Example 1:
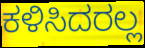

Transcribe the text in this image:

ಕಳಿಸಿದರಲ್ಲ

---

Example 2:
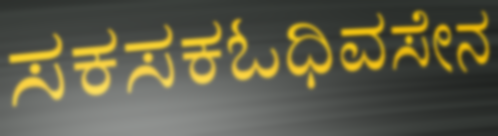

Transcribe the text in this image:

ಸಕಸಕಓಧಿವಸೇನ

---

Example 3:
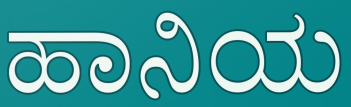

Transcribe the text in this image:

ಹಾನಿಯ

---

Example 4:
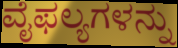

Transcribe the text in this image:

ವೈಫಲ್ಯಗಳನ್ನು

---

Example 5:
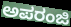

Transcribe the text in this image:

ಅಪರಂಜಿ